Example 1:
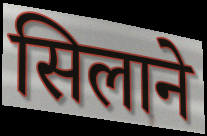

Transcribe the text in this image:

सिलाने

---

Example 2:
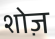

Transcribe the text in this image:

शोज़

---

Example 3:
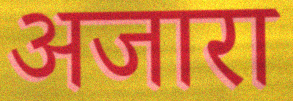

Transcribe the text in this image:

अजारा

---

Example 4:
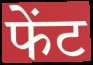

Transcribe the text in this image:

फेंट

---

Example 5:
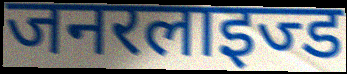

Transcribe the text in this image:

जनरलाइज्ड